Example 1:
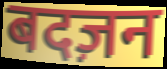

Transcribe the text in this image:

बदज़न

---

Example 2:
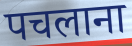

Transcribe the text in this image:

पचलाना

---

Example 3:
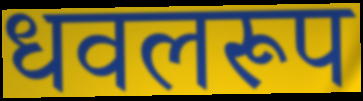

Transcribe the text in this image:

धवलरूप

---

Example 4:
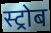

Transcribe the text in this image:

स्ट्रोब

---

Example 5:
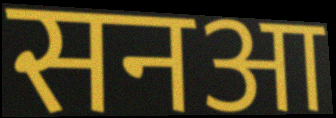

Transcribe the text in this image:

सनआ